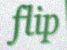
flip